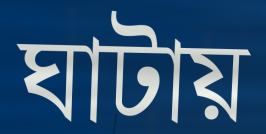
ঘাটায়